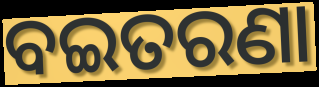
ବଇତରଣା